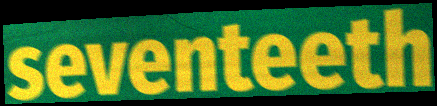
seventeeth